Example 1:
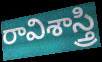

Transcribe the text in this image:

రావిశాస్త్రి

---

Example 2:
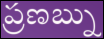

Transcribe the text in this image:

ప్రణబ్ను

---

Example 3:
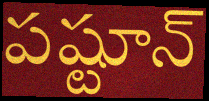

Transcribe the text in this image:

పష్టూన్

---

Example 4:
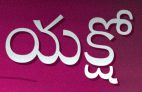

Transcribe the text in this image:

యక్షో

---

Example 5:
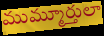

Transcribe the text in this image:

ముమ్మూర్తులా